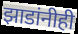
झाडांनीही